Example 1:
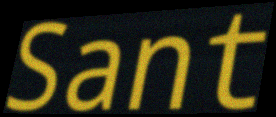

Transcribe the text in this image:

Sant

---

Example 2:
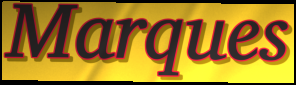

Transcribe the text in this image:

Marques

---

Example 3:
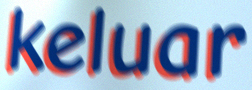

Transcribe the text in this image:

keluar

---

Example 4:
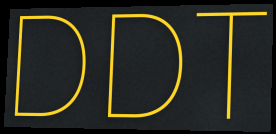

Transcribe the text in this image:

DDT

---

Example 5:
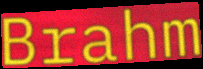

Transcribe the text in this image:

Brahm